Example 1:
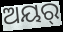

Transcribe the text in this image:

ଅୟର୍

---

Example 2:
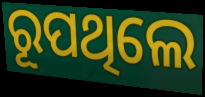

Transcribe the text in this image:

ରୂପଥିଲେ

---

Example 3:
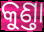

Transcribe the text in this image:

କୁଣ୍ତା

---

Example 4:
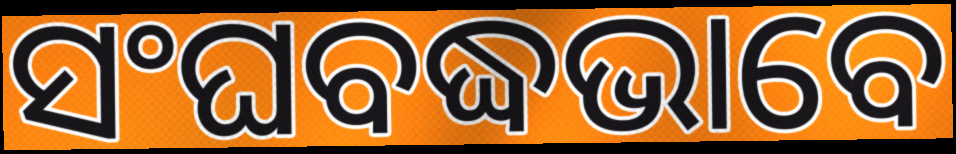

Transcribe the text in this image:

ସଂଘବଦ୍ଧଭାବେ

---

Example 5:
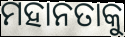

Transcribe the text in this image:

ମହାନତାକୁ